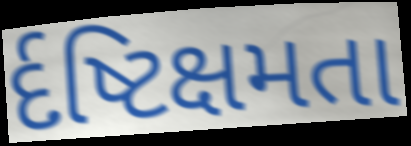
ર્દષ્ટિક્ષમતા